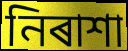
নিৰাশা